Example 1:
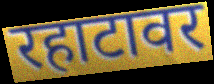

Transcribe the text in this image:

रहाटावर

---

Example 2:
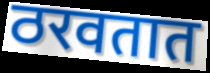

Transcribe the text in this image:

ठरवतात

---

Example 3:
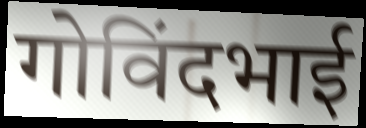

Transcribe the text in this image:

गोविंदभाई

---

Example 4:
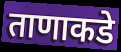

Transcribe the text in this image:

ताणाकडे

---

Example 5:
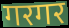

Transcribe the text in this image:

गरगर